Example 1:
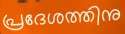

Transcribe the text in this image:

പ്രദേശത്തിനു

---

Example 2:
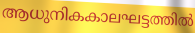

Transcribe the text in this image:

ആധുനികകാലഘട്ടത്തിൽ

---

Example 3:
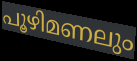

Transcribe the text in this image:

പൂഴിമണലും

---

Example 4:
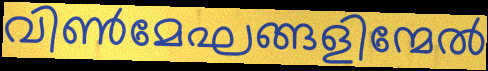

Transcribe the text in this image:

വിൺമേഘങ്ങളിന്മേൽ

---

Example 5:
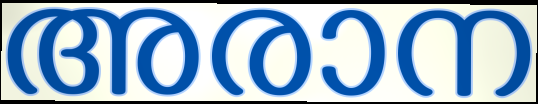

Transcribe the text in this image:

അരാന